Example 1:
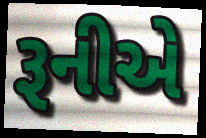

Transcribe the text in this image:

રૂનીએ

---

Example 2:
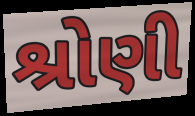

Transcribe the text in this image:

શ્રોણી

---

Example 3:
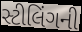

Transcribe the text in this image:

સ્ટીલિંગની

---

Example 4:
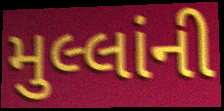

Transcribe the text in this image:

મુલ્લાંની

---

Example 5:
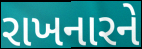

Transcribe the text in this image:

રાખનારને